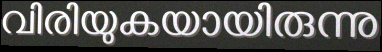
വിരിയുകയായിരുന്നു